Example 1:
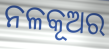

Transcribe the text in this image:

ନଳକୂଅର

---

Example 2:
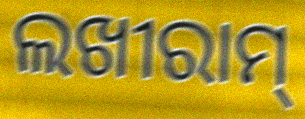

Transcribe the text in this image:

ଲଖୀରାମ୍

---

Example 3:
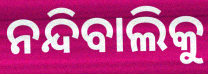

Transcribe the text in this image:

ନନ୍ଦିବାଲିକୁ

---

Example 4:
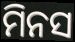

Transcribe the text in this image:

ମିନସ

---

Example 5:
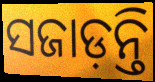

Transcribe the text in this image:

ସଜାଡ଼ନ୍ତି